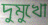
দুমুখো